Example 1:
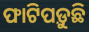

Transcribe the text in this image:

ଫାଟିପଡ଼ୁଛି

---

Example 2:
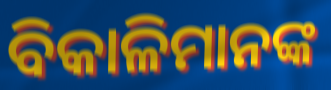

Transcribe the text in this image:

ବିକାଳିମାନଙ୍କ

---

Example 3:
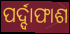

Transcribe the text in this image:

ପର୍ଦ୍ଦାଫାଶ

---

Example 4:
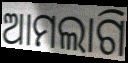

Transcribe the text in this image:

ଆମଲାଗି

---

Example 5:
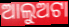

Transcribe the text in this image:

ଆଲୁଅଟା